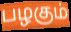
பழகும்